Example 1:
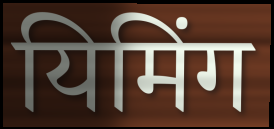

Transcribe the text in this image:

यिमिंग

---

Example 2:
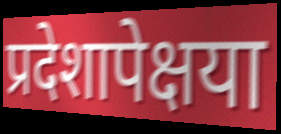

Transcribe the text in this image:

प्रदेशापेक्षया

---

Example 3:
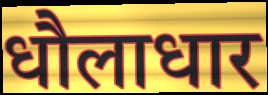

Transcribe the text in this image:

धौलाधार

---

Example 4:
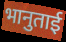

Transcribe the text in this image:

भानुताई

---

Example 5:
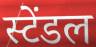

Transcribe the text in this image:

स्टेंडल